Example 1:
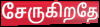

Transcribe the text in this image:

சேருகிறதே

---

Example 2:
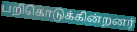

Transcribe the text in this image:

பறிகொடுக்கின்றனர்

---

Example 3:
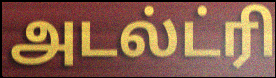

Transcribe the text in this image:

அடல்ட்ரி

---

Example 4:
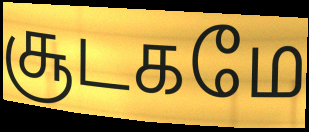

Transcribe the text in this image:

சூடகமே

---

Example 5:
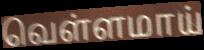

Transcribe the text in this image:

வெள்ளமாய்